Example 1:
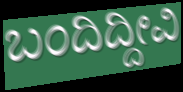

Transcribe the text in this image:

ಬಂದಿದ್ದೀವಿ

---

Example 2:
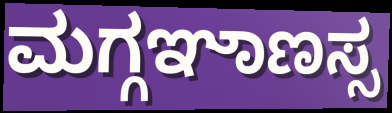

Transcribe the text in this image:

ಮಗ್ಗಞಾಣಸ್ಸ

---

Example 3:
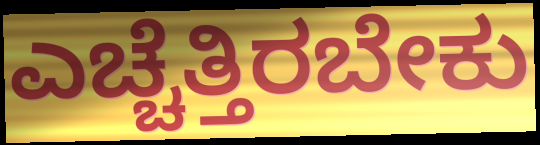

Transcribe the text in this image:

ಎಚ್ಚೆತ್ತಿರಬೇಕು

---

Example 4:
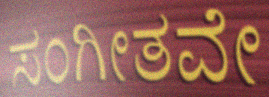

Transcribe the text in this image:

ಸಂಗೀತವೇ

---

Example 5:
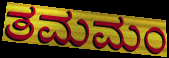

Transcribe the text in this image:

ತಮಮಂ